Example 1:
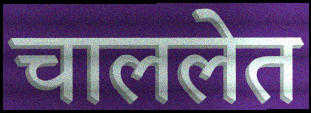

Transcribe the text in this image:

चाललेत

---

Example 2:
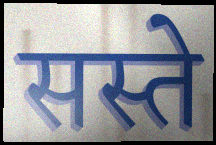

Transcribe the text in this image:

सस्ते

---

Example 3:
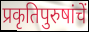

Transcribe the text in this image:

प्रकृतिपुरुषांचें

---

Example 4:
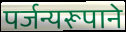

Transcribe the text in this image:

पर्जन्यरूपाने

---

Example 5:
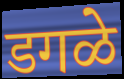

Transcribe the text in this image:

डगळे